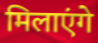
मिलाएंगे